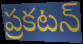
ప్రకటన్